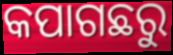
କପାଗଛରୁ